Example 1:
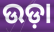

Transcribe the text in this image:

ଉଡ଼ା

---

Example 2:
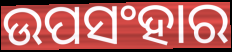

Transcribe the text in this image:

ଉପସଂହାର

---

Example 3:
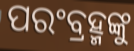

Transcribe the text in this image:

ପରଂବ୍ରହ୍ମଙ୍କୁ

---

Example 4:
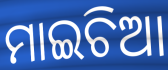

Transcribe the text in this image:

ମାଇଚିଆ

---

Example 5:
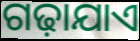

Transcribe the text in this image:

ଗଢ଼ାଯାଏ